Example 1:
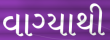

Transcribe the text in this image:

વાગ્યાથી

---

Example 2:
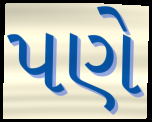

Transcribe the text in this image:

પણે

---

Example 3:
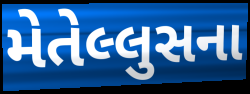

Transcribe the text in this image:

મેતેલ્લુસના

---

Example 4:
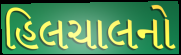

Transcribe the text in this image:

હિલચાલનો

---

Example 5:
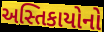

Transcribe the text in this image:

અસ્તિકાયોનો